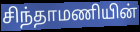
சிந்தாமணியின்